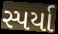
સ્પર્યા